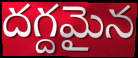
దగ్దమైన